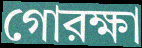
গোরক্ষা